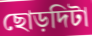
ছোড়দিটা